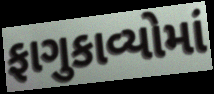
ફાગુકાવ્યોમાં